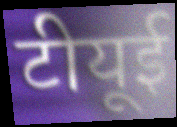
टीयूई